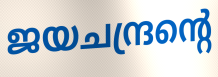
ജയചന്ദ്രന്റെ